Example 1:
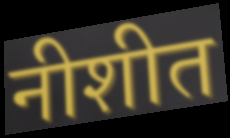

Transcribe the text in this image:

नीशीत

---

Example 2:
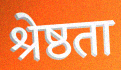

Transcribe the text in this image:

श्रेष्ठता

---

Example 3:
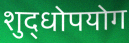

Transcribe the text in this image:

शुद्धोपयोग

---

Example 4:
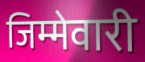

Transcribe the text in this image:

जिम्मेवारी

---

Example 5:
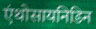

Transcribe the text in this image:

एंथोसायनिडिन